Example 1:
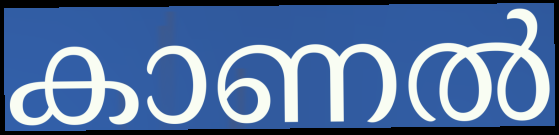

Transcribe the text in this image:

കാണൽ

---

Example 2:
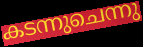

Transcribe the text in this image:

കടന്നുചെന്നു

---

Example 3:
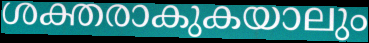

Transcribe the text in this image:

ശക്തരാകുകയാലും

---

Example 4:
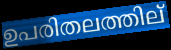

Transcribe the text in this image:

ഉപരിതലത്തില്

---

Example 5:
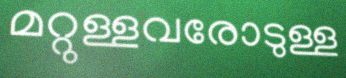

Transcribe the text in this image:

മറ്റുള്ളവരോടുള്ള